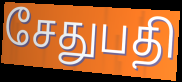
சேதுபதி